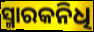
ସ୍ମାରକନିଧି